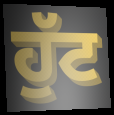
ਹੁੱਟ